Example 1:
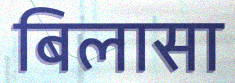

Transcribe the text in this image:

बिलासा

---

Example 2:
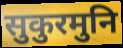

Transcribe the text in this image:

सुकुरमुनि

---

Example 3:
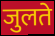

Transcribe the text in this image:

जुलते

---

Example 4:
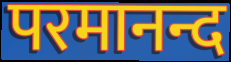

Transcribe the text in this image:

परमानन्‍द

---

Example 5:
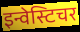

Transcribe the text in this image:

इन्वेस्टिचर